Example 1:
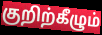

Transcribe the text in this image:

குறிற்கீழும்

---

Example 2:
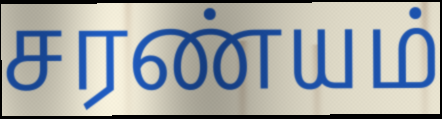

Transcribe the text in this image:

சரண்யம்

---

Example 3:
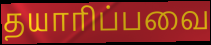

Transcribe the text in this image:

தயாரிப்பவை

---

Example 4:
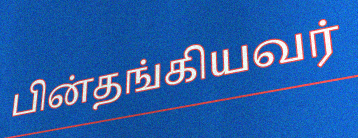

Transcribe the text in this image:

பின்தங்கியவர்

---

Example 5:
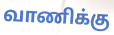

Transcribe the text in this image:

வாணிக்கு